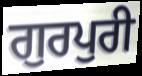
ਗੁਰਪੁਰੀ